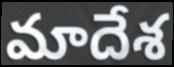
మాదేశ